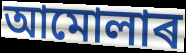
আমোলাৰ